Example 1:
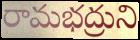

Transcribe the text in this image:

రామభద్రుని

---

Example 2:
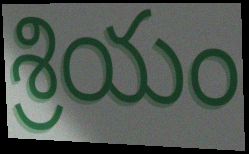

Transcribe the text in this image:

శ్రియం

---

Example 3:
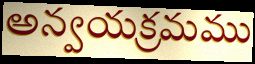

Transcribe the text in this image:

అన్వయక్రమము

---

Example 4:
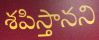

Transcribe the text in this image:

శపిస్తానని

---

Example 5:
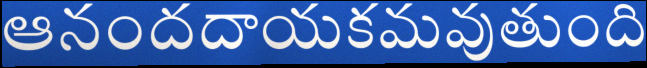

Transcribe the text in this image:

ఆనందదాయకమవుతుంది